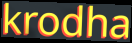
krodha